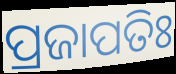
ପ୍ରଜାପତିଃ